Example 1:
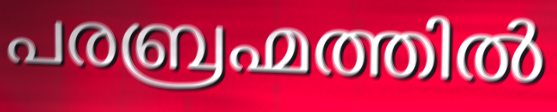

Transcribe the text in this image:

പരബ്രഹ്മത്തിൽ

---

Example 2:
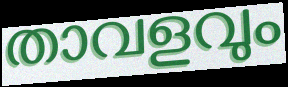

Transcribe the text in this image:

താവളവും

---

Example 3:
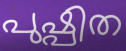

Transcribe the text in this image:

പുഷ്പിത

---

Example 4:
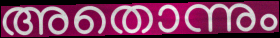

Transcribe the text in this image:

അതൊന്നും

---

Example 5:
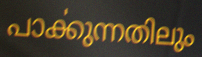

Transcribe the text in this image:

പാൎക്കുന്നതിലും